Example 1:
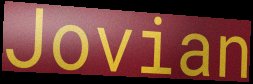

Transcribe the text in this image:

Jovian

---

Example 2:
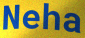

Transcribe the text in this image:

Neha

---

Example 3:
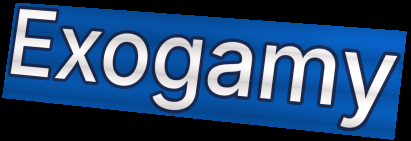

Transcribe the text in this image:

Exogamy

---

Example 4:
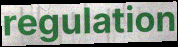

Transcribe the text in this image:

regulation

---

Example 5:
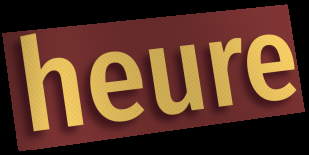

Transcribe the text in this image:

heure